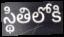
స్థితిలోకి